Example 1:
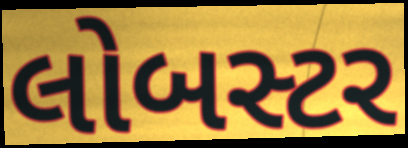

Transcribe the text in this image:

લોબસ્ટર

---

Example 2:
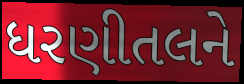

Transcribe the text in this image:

ધરણીતલને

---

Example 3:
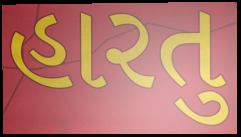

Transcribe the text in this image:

હારતુ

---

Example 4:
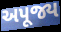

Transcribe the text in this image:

અપૂજ્ય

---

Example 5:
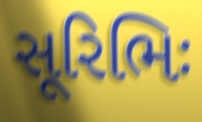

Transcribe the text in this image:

સૂરિભિઃ